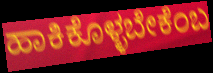
ಹಾಕಿಕೊಳ್ಳಬೇಕೆಂಬ